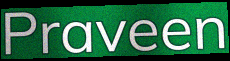
Praveen